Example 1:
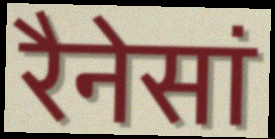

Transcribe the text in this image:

रैनेसां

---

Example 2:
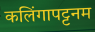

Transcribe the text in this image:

कलिंगापट्टनम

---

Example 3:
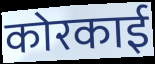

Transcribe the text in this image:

कोरकाई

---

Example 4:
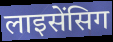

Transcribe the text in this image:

लाइसेंसिग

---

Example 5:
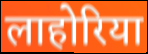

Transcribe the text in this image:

लाहोरिया